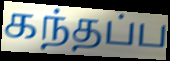
கந்தப்ப